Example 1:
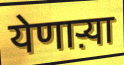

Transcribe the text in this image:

येणाऱ्‍या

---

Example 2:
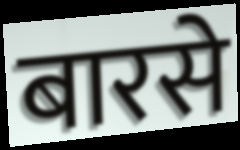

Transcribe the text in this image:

बारसे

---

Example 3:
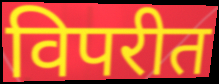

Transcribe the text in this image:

विपरीत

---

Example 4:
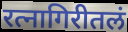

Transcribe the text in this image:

रत्नागिरीतलं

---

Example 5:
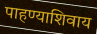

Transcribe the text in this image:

पाहण्याशिवाय